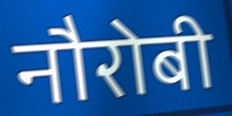
नौरोबी